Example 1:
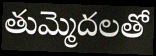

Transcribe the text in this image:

తుమ్మెదలతో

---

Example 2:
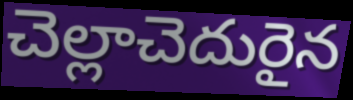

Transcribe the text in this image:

చెల్లాచెదురైన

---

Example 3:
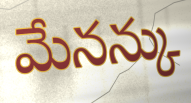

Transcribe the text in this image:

మేనన్కు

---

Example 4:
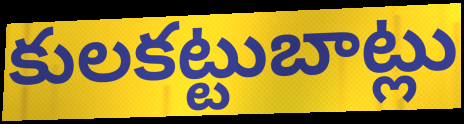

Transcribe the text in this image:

కులకట్టుబాట్లు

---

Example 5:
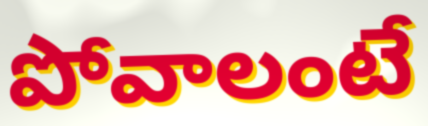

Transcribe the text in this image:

పోవాలంటే